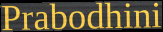
Prabodhini